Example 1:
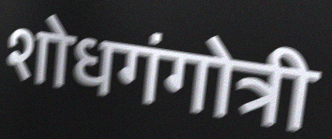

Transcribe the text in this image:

शोधगंगोत्री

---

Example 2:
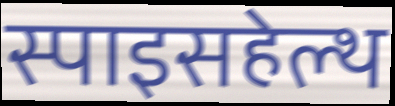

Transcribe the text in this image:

स्पाइसहेल्थ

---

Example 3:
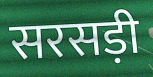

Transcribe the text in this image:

सरसड़ी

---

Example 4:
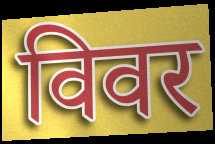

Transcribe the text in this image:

विवर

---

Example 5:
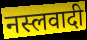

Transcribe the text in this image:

नस्लवादी